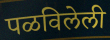
पळविलेली